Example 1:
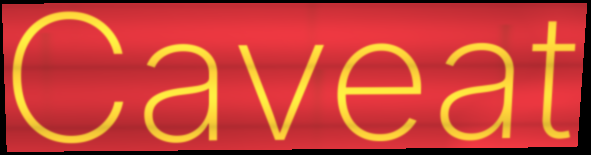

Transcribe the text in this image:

Caveat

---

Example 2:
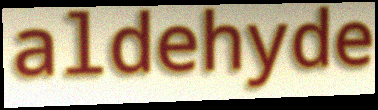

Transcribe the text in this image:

aldehyde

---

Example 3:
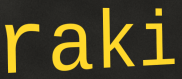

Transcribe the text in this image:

raki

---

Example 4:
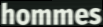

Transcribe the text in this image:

hommes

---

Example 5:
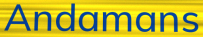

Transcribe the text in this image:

Andamans